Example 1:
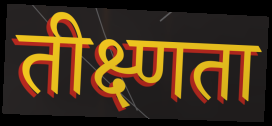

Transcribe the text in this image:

तीक्ष्णता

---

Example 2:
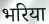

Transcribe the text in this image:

भरिया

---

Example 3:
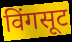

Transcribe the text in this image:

विंगसूट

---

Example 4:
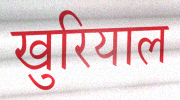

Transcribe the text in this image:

खुरियाल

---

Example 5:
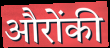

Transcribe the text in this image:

औरोंकी